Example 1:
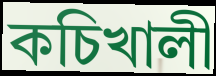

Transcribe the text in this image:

কচিখালী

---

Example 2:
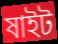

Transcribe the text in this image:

ষাইট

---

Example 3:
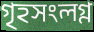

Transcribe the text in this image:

গৃহসংলগ্ন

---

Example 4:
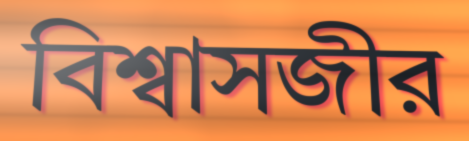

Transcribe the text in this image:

বিশ্বাসজীর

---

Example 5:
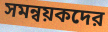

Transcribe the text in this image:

সমন্বয়কদের